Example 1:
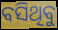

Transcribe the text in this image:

ବସିଥିବୁ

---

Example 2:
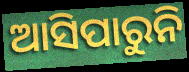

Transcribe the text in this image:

ଆସିପାରୁନି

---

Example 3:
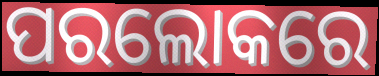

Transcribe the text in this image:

ପରଲୋକରେ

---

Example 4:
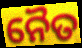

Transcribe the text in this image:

ନୈତ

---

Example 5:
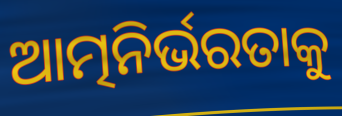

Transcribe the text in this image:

ଆତ୍ମନିର୍ଭରତାକୁ